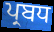
ਪ੍ਰਬਧ